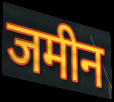
जमीन